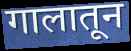
गालातून